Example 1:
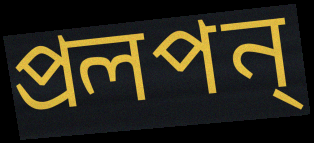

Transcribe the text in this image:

প্রলপন্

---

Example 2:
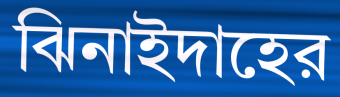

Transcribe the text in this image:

ঝিনাইদাহের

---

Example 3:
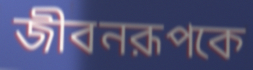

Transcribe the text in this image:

জীবনরূপকে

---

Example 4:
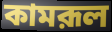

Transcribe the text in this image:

কামরূল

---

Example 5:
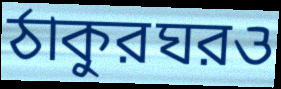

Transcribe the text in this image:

ঠাকুরঘরও